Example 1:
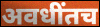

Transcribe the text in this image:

अवधींतच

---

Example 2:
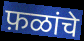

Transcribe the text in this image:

फ़ळांचे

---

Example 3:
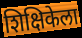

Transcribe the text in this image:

शिक्षिकेला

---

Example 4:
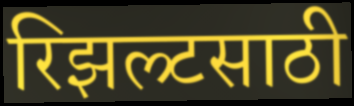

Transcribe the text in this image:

रिझल्टसाठी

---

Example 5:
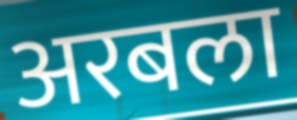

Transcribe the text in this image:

अरबला